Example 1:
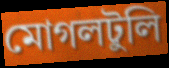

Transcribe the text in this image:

মোগলটুলি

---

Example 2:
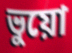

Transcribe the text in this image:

ভুয়ো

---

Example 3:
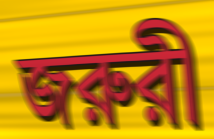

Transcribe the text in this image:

জরুরী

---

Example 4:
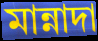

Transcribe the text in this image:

মান্নাদা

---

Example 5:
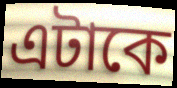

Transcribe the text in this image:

এটাকে